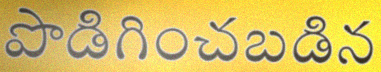
పొడిగించబడిన